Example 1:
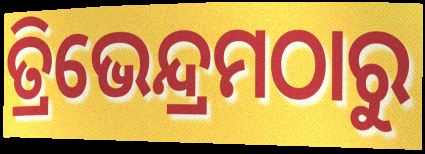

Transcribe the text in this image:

ତ୍ରିଭେନ୍ଦ୍ରମଠାରୁ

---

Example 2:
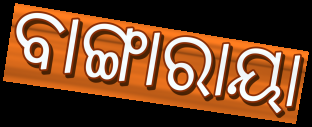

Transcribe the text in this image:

ବାଙ୍ଗାରାୟା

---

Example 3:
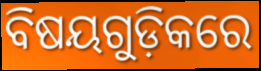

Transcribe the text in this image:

ବିଷୟଗୁଡ଼ିକରେ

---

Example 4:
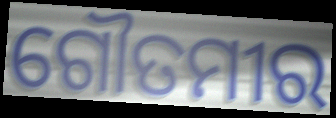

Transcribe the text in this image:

ଗୌତମୀର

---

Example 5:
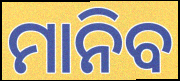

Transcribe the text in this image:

ମାନିବ